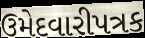
ઉમેદવારીપત્રક